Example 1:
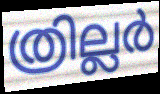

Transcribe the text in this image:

ത്രില്ലർ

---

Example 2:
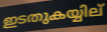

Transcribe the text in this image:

ഇടതുകയ്യില്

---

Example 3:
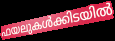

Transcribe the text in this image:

ഫയലുകൾക്കിടയിൽ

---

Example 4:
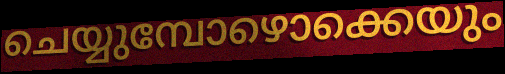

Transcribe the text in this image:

ചെയ്യുമ്പോഴൊക്കെയും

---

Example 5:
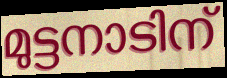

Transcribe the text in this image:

മുട്ടനാടിന്